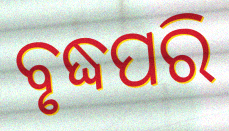
ବୃଦ୍ଧପରି